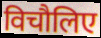
विचौलिए